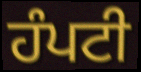
ਹੰਪਟੀ